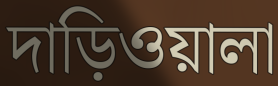
দাড়িওয়ালা